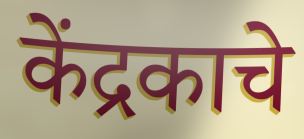
केंद्रकाचे